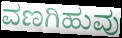
ವಣಗಿಹುವು